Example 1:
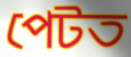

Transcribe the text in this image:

পেটত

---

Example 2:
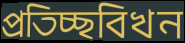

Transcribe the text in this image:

প্ৰতিচ্ছবিখন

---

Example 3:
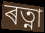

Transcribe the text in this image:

ৰত্না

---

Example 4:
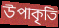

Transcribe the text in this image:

উপাকৃতি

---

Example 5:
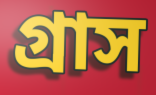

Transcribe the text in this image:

গ্ৰাস